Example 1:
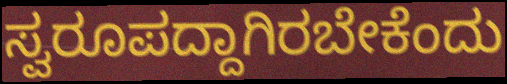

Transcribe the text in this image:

ಸ್ವರೂಪದ್ದಾಗಿರಬೇಕೆಂದು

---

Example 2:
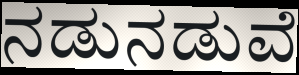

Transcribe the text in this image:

ನಡುನಡುವೆ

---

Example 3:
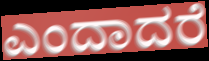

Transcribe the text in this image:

ಎಂದಾದರೆ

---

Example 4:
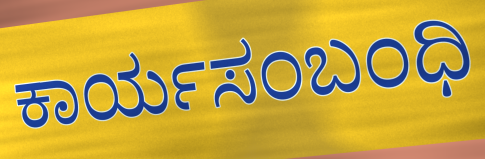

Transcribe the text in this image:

ಕಾರ್ಯಸಂಬಂಧಿ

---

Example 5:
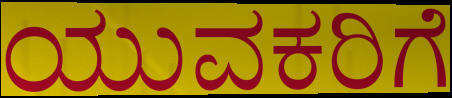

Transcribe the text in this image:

ಯುವಕರಿಗೆ